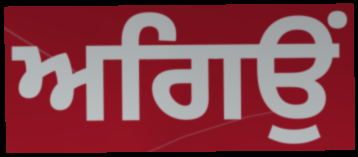
ਅਗਿਉਂ